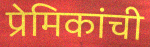
प्रेमिकांची